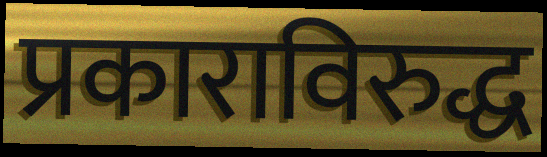
प्रकाराविरुद्ध